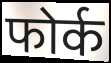
फोर्क